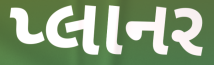
પ્લાનર